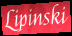
Lipinski